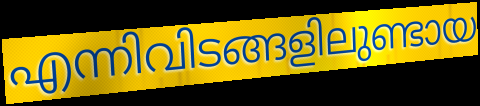
എന്നിവിടങ്ങളിലുണ്ടായ